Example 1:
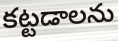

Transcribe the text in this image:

కట్టడాలను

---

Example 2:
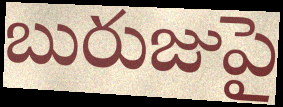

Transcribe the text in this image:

బురుజుపై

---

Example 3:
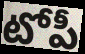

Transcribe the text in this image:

టోపీ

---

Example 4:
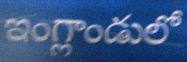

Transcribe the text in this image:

ఇంగ్లాండులో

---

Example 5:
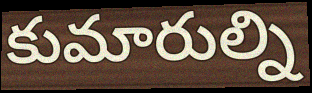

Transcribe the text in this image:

కుమారుల్ని